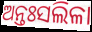
ଅନ୍ତଃସଲିଳା